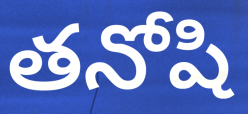
తనోషి